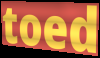
toed